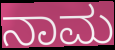
ನಾಮ